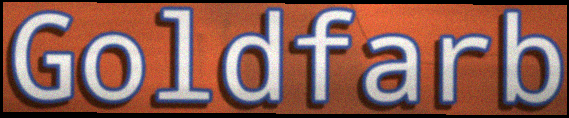
Goldfarb